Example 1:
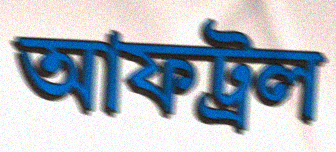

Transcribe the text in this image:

আফট্রল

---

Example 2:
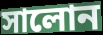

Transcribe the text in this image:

সালোন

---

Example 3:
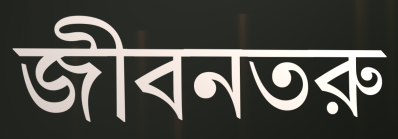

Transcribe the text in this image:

জীবনতরু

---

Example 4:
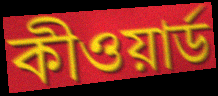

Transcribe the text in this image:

কীওয়ার্ড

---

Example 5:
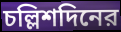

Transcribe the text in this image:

চল্লিশদিনের